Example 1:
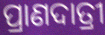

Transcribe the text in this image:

ପ୍ରାଣଦାତ୍ରୀ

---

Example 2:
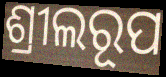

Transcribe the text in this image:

ଶ୍ରୀଲରୂପ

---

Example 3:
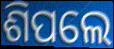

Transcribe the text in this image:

ଶିପଲେ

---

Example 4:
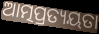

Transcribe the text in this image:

ଆତ୍ମପ୍ରତ୍ୟୟତା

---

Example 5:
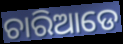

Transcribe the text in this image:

ଚାରିଆଡେ